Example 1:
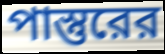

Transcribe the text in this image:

পাস্তুরের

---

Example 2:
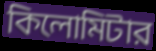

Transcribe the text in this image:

কিলোমিটার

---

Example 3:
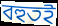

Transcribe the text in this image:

বহুতই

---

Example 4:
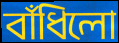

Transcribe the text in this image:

বাঁধিলো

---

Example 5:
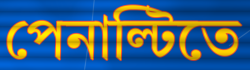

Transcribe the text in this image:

পেনাল্টিতে